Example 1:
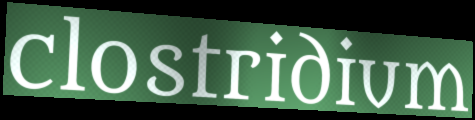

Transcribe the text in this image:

clostridium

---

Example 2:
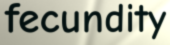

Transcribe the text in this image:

fecundity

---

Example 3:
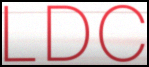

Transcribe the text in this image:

LDC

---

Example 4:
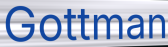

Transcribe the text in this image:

Gottman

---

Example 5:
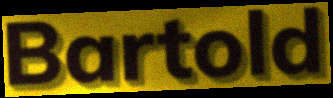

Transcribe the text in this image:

Bartold